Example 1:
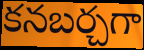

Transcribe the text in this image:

కనబర్చగా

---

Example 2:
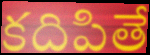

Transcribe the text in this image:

కదిపితే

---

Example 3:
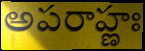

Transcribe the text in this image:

అపరాహ్ణః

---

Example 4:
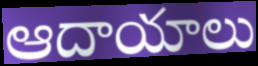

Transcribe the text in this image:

ఆదాయాలు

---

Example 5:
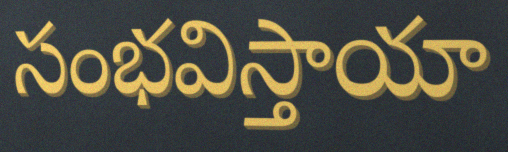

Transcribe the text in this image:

సంభవిస్తాయా